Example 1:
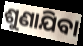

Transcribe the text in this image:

ଶୁଣାଯିବା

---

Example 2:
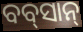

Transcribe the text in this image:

ବବ୍‌ସାନ୍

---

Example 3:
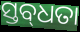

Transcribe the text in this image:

ସ୍ତବ୍‍ଧତା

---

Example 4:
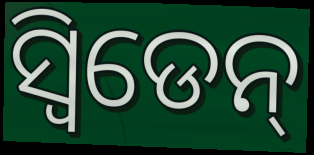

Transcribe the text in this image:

ସ୍ଵିଡେନ୍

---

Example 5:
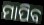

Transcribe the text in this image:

ମାପିବ